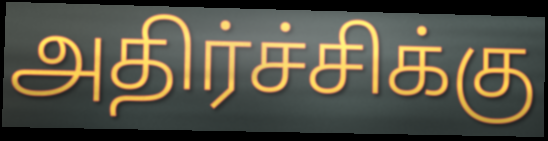
அதிர்ச்சிக்கு